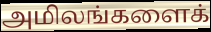
அமிலங்களைக்